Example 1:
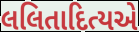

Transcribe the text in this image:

લલિતાદિત્યએ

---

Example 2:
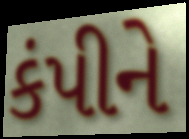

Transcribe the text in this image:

કંપીને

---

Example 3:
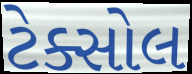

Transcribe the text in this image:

ટેક્સોલ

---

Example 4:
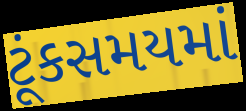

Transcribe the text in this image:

ટૂંકસમયમાં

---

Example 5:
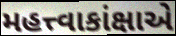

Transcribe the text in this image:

મહત્ત્વાકાંક્ષાએ